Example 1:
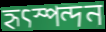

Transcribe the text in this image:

হৃৎস্পন্দন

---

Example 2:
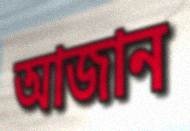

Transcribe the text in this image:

আজান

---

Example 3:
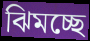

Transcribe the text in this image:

ঝিমচ্ছে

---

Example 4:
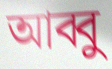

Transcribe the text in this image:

আব্বু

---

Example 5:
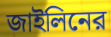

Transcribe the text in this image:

জাইলিনের